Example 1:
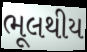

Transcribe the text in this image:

ભૂલથીય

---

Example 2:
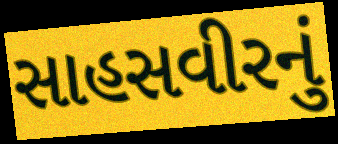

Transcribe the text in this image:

સાહસવીરનું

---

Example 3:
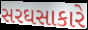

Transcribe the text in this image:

સરઘસાકારે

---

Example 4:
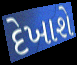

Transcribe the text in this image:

દેખાશે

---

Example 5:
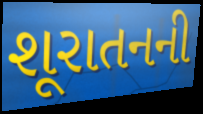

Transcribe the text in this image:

શૂરાતનની